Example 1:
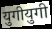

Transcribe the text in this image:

युगीयुगी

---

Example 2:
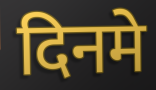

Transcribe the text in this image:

दिनमे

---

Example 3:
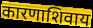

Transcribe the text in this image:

कारणाशिवाय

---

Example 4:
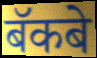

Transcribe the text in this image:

बॅकबे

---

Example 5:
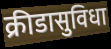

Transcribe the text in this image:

क्रीडासुविधा